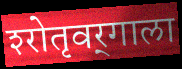
श्रोतृवर्गाला